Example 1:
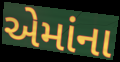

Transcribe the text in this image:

એમાંના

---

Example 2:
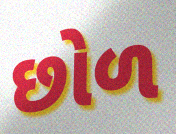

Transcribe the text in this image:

છોળ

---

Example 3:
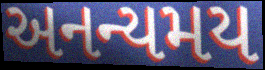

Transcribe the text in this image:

અનન્યમય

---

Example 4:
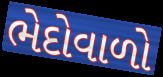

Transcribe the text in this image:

ભેદોવાળો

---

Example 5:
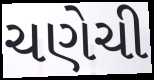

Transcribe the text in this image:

ચણેચી